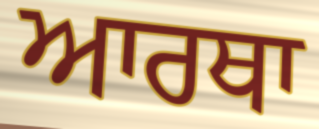
ਆਰਥਾ